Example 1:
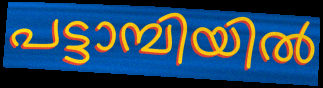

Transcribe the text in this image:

പട്ടാമ്പിയിൽ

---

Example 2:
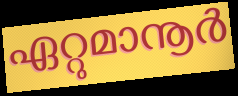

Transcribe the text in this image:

ഏറ്റുമാനൂർ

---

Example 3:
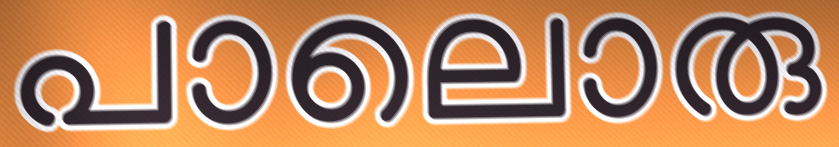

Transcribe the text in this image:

പാലൊരു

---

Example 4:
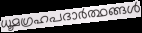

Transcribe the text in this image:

ധൂമഗ്രഹപദാർത്ഥങ്ങൾ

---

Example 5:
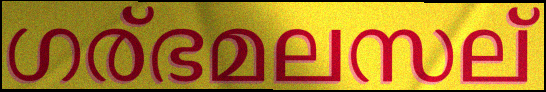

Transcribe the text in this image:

ഗര്ഭമലസല്